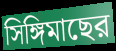
সিঙ্গিমাছের